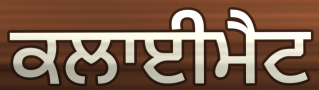
ਕਲਾਈਮੈਟ